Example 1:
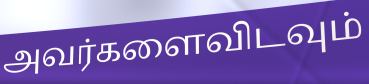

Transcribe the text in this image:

அவர்களைவிடவும்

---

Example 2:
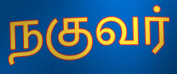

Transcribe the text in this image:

நகுவர்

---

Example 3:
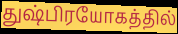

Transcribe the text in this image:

துஷ்பிரயோகத்தில்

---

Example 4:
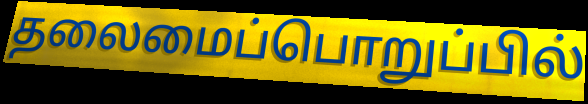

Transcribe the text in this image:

தலைமைப்பொறுப்பில்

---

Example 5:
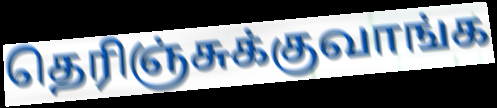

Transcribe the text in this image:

தெரிஞ்சுக்குவாங்க